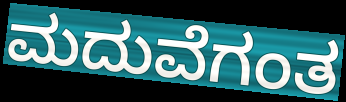
ಮದುವೆಗಂತ